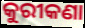
କୁରୀକଣା